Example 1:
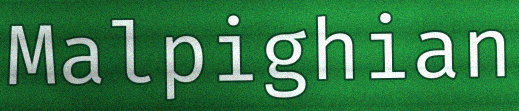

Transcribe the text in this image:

Malpighian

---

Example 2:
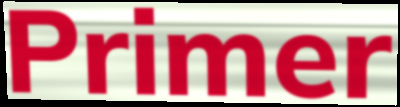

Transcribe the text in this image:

Primer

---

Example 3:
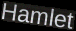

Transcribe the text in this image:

Hamlet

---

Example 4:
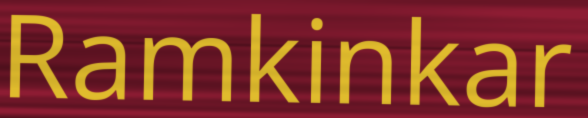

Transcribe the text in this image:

Ramkinkar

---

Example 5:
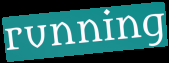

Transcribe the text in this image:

running